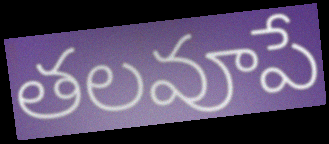
తలవూపే